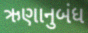
ઋણાનુબંધ